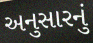
અનુસારનું